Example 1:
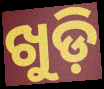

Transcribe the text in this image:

ଖୁଡ଼ି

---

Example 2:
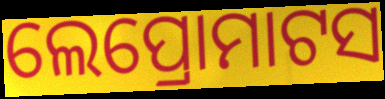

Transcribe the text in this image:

ଲେପ୍ରୋମାଟସ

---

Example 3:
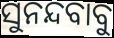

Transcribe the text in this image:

ସୁନନ୍ଦବାବୁ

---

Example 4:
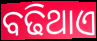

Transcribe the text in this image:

ବଢିଥାଏ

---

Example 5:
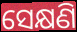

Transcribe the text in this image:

ସେକ୍ଷଣି